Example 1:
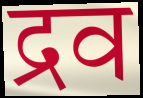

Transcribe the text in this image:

द्रव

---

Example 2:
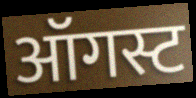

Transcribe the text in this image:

ऑगस्ट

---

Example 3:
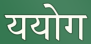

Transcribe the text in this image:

ययोग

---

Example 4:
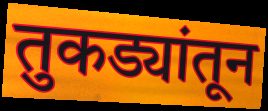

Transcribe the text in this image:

तुकड्यांतून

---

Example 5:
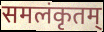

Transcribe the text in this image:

समलंकृतम्